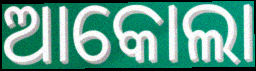
ଆକୋଲା